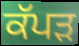
ਕੱਪੜ